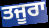
ਤਜੂਰਾ